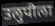
उलुपीला